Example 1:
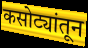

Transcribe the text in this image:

कसोट्यांतून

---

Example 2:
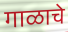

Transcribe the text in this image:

गाळाचे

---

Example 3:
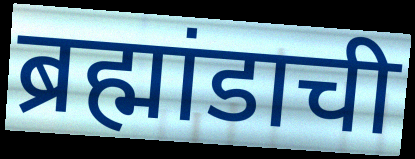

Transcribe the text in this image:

ब्रह्मांडाची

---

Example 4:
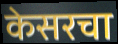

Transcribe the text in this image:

केसरचा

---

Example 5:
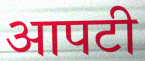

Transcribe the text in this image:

आपटी